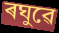
ৰঘুৱে